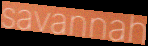
savannah